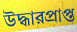
উদ্ধারপ্রাপ্ত